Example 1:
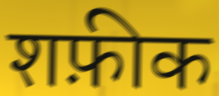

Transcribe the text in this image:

शफ़ीक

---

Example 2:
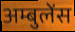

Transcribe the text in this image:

अम्बुलेंस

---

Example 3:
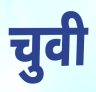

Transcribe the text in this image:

चुवी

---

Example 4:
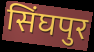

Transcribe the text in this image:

सिंघपुर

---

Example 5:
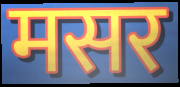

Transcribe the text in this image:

मसर